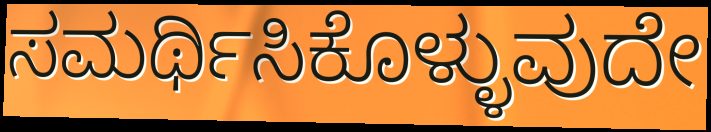
ಸಮರ್ಥಿಸಿಕೊಳ್ಳುವುದೇ